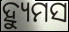
ହ୍ୟୁମସ